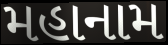
મહાનામ